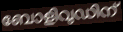
ബോളിവുഡിന്